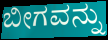
ಬೀಗವನ್ನು